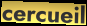
cercueil